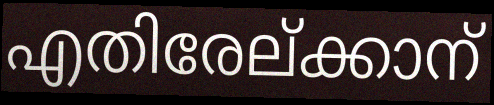
എതിരേല്ക്കാന്